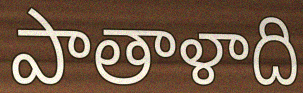
పాతాళాది